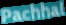
Pachhal